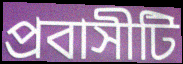
প্রবাসীটি